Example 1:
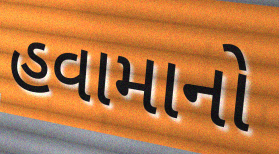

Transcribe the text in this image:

હવામાનો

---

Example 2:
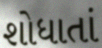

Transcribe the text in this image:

શોધાતાં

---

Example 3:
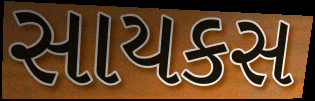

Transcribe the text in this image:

સાયકસ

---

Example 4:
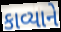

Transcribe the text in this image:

કાવ્યાને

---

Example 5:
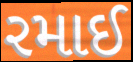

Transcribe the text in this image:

રમાઈ